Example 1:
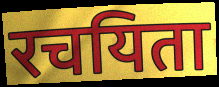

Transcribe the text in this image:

रचयिता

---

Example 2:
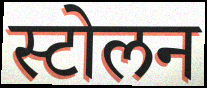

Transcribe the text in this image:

स्टोलन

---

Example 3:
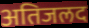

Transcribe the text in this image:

अतिजलद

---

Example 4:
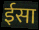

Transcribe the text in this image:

ईसा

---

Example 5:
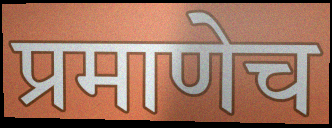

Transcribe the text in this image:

प्रमाणेच